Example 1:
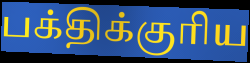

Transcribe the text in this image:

பக்திக்குரிய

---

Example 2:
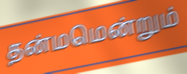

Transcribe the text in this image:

தன்மமென்றும்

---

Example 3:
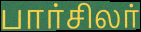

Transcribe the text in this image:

பார்சிலர்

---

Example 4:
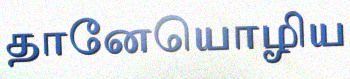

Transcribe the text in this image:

தானேயொழிய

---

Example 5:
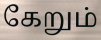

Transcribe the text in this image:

கேறும்